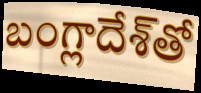
బంగ్లాదేశ్‌తో